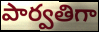
పార్వతిగా